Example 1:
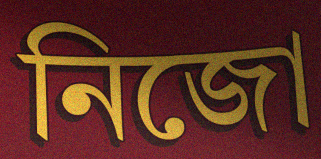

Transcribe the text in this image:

নিজো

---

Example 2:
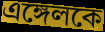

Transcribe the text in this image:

এঙ্গেলকে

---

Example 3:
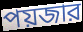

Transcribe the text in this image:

পয়জার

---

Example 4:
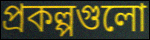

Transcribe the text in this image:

প্রকল্পগুলো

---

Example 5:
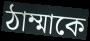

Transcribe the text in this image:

ঠাম্মাকে